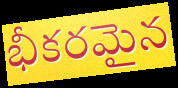
భీకరమైన